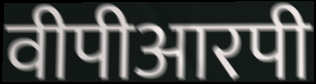
वीपीआरपी